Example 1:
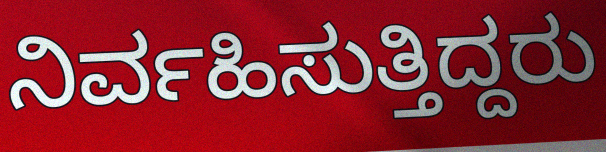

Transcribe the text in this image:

ನಿರ್ವಹಿಸುತ್ತಿದ್ದರು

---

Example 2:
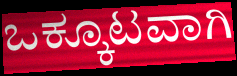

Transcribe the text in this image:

ಒಕ್ಕೂಟವಾಗಿ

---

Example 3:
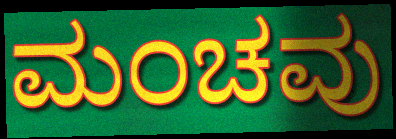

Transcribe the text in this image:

ಮಂಚವು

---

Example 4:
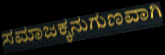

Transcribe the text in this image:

ಸಮಾಜಕ್ಕನುಗುಣವಾಗಿ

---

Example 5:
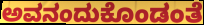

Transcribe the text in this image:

ಅವನಂದುಕೊಂಡಂತೆ